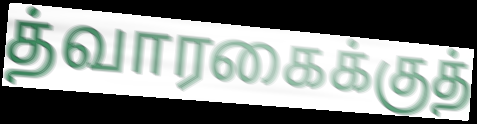
த்வாரகைக்குத்